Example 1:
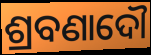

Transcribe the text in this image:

ଶ୍ରବଣାଦୌ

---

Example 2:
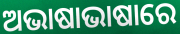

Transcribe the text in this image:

ଅଭାଷାଭାଷାରେ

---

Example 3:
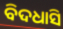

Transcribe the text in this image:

ବିଦଧାସି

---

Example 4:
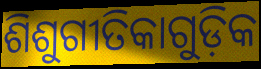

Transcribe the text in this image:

ଶିଶୁଗୀତିକାଗୁଡ଼ିକ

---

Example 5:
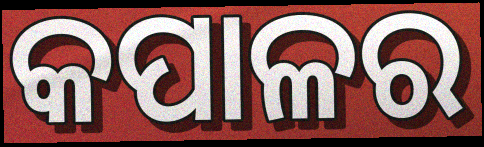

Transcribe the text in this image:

କପାଳର